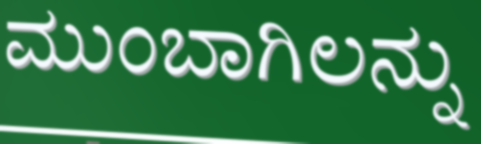
ಮುಂಬಾಗಿಲನ್ನು